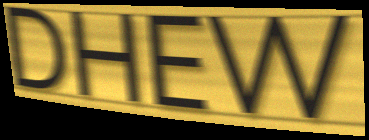
DHEW